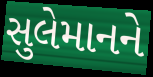
સુલેમાનને